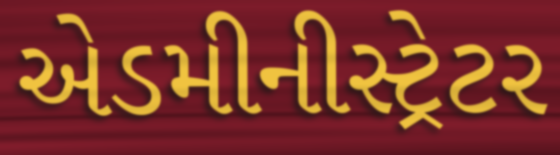
એડમીનીસ્ટ્રેટર